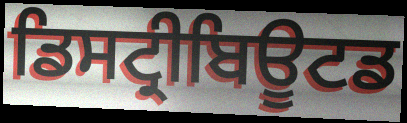
ਡਿਸਟ੍ਰੀਬਿਊਟਡ